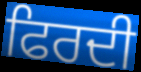
ਫਿਰਦੀ